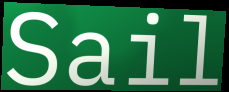
Sail